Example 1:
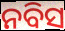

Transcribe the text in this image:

ନବିସ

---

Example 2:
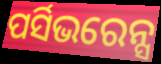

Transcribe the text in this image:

ପର୍ସିଭରେନ୍ସ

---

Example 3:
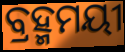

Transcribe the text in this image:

ବ୍ରହ୍ମମୟୀ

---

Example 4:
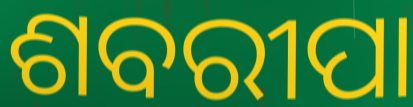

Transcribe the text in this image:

ଶବରୀପା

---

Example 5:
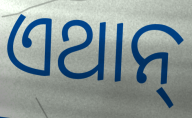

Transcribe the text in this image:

ଏଥାନ୍